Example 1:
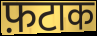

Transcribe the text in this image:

फ़टाक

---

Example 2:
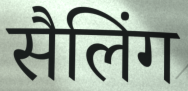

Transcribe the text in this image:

सैलिंग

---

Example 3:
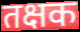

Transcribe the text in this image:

तक्षक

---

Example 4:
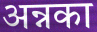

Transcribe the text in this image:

अन्नका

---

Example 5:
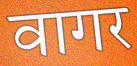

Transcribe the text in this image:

वागर